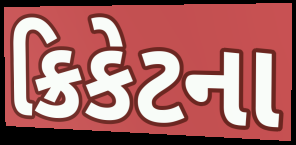
ક્રિકેટના